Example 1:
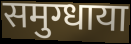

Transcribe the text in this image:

समुग्धाया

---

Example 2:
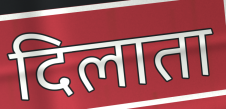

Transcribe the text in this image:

दिलाता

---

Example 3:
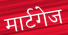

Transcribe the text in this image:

मार्टगेज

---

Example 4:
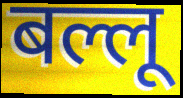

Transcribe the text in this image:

बल्लू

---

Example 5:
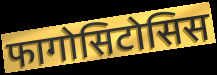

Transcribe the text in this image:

फागोसिटोसिस